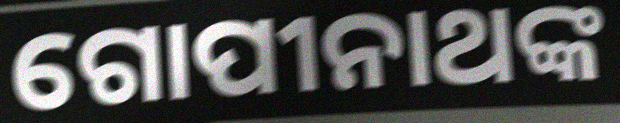
ଗୋପୀନାଥଙ୍କ